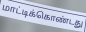
மாட்டிக்கொண்டது